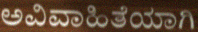
ಅವಿವಾಹಿತೆಯಾಗಿ